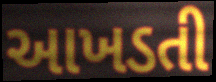
આખડતી